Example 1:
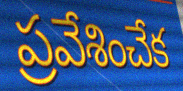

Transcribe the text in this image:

ప్రవేశించేక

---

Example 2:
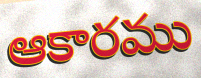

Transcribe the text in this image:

ఆకారము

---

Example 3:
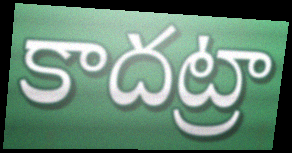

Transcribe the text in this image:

కాదట్రా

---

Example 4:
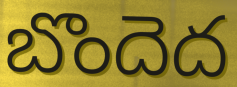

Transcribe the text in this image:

బొందెద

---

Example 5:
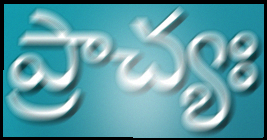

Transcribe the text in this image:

ప్రాచ్యః